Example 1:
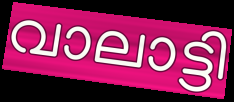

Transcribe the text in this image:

വാലാട്ടി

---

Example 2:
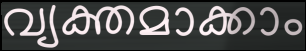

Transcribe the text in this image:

വ്യക്തമാക്കാം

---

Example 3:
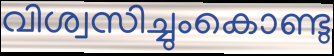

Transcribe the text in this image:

വിശ്വസിച്ചുംകൊണ്ടു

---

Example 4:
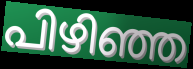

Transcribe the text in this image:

പിഴിഞ്ഞ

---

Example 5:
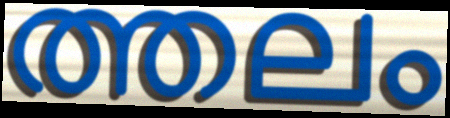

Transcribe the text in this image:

ത്തലം